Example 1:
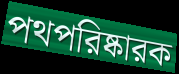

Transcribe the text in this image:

পথপরিষ্কারক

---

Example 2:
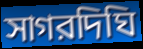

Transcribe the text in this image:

সাগরদিঘি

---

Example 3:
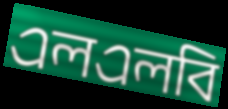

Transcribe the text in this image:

এলএলবি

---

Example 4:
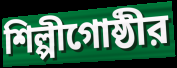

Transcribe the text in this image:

শিল্পীগোষ্ঠীর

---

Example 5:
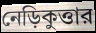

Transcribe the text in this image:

নেড়িকুত্তার